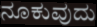
ನೂಕುವುದು